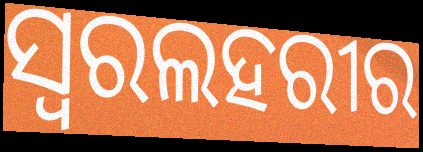
ସ୍ୱରଲହରୀର